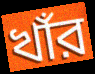
খাঁর